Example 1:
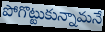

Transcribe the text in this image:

పోగొట్టుకున్నామనే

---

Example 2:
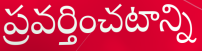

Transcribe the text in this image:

ప్రవర్తించటాన్ని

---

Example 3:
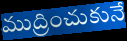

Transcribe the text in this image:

ముద్రించుకునే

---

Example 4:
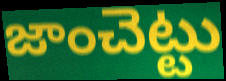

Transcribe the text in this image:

జాంచెట్టు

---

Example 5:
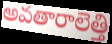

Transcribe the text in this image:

అవతారాలెత్తి